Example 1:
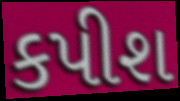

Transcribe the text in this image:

કપીશ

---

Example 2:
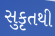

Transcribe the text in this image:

સુકૃતથી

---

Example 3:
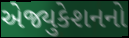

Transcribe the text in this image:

એજ્યુકેશનનો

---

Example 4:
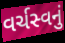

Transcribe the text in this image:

વર્ચસ્વનું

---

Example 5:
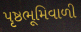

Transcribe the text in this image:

પૃષ્ઠભૂમિવાળી